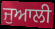
ਜੁਆਲੀ